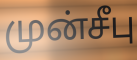
முன்சீபு